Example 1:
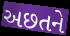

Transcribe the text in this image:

અછતને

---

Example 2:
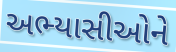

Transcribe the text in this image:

અભ્યાસીઓને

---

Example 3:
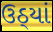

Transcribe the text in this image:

ઉઠ્યાં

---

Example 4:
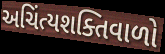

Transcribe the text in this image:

અચિંત્યશક્તિવાળો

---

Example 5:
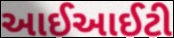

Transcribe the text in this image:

આઈઆઈટી